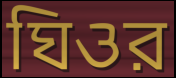
ঘিওর